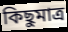
কিছুমাত্র